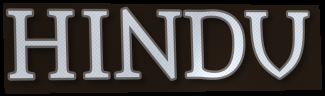
HINDU